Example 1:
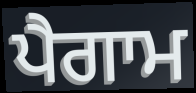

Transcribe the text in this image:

ਪੈਗਾਮ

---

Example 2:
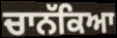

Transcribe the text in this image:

ਚਾਨੱਕਿਆ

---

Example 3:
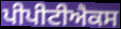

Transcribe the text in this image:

ਪੀਪੀਟੀਐਕਸ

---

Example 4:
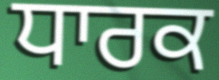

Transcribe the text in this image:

ਧਾਰਕ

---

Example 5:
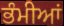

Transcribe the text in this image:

ਭੰਮੀਆਂ